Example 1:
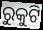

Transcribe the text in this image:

ରୁକୁଟି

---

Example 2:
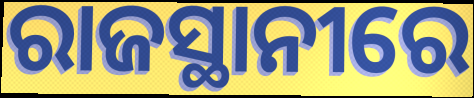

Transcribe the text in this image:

ରାଜସ୍ଥାନୀରେ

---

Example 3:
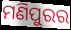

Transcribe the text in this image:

ମଣିପୁରର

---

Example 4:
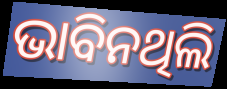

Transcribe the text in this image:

ଭାବିନଥିଲି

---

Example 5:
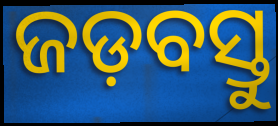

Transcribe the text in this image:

ଜଡ଼ବସ୍ତୁ